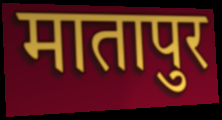
मातापुर